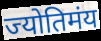
ज्योतिमंय